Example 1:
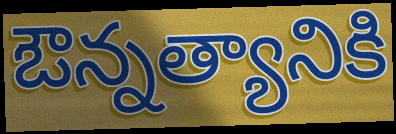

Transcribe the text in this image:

ఔన్నత్యానికి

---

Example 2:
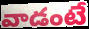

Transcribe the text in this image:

వాడంటే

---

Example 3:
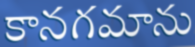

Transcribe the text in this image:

కానగమాను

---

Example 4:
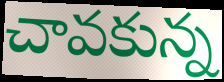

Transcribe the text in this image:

చావకున్న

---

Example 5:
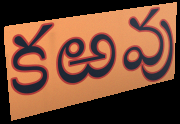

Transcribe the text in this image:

కఱవు